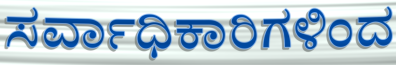
ಸರ್ವಾಧಿಕಾರಿಗಳಿಂದ